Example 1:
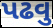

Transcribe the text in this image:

પઢવુ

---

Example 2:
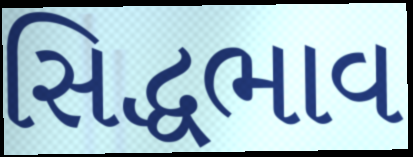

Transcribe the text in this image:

સિદ્ધભાવ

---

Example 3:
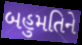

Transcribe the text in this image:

બહુમતિને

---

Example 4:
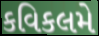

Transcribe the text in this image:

કવિકલમે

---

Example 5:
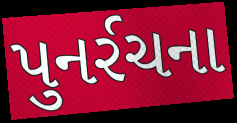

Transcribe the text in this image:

પુનર્રચના